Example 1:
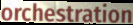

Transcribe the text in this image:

orchestration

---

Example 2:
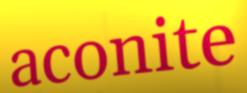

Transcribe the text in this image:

aconite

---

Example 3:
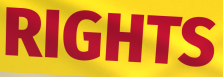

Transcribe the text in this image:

RIGHTS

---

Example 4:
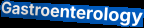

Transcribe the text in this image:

Gastroenterology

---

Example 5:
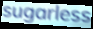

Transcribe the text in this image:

sugarless